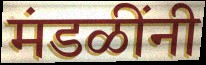
मंडळींनी